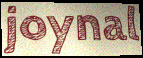
joynal